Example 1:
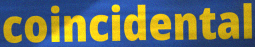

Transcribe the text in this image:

coincidental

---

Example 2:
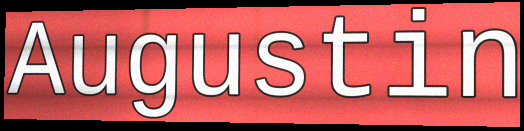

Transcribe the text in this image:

Augustin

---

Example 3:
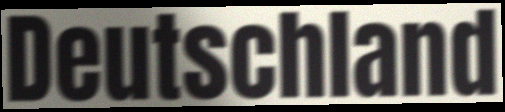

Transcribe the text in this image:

Deutschland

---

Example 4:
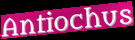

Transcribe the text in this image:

Antiochus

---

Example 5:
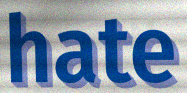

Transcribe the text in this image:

hate